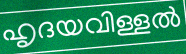
ഹൃദയവിള്ളൽ